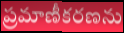
ప్రమాణీకరణను